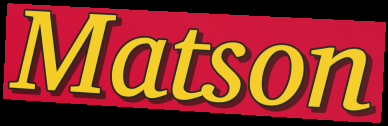
Matson